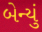
બેન્યું